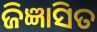
ଜିଜ୍ଞାସିତ